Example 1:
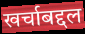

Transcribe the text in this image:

खर्चाबद्दल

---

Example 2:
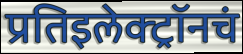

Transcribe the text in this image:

प्रतिइलेक्ट्रॉनचं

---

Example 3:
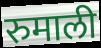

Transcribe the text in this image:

रुमाली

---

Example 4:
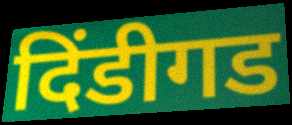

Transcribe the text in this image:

दिंडीगड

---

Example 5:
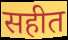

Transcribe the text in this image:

सहीत